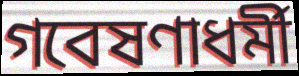
গবেষণাধর্মী